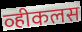
व्हीकलस